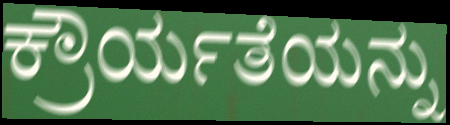
ಕ್ರೌರ್ಯತೆಯನ್ನು